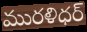
మురళిధర్